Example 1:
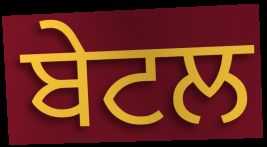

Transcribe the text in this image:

ਬੇਟਲ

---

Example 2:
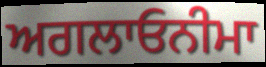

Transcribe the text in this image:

ਅਗਲਾਓਨੀਮਾ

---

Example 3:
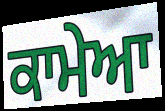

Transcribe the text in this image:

ਕਾਮੇਆ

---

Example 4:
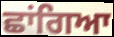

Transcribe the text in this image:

ਛਾਂਗਿਆ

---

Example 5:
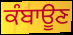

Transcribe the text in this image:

ਕੰਬਾਊਣ